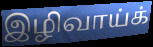
இழிவாய்க்